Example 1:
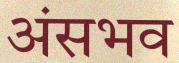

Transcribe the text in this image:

अंसभव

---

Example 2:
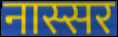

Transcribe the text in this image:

नास्सर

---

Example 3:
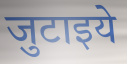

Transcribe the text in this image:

जुटाइये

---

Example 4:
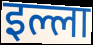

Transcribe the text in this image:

इल्ला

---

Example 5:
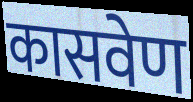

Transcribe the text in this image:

कासवेण